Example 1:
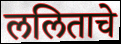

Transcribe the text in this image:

ललिताचे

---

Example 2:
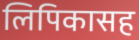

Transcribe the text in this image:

लिपिकासह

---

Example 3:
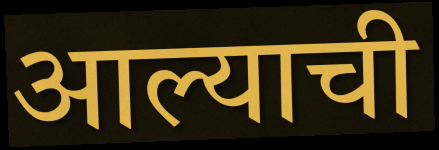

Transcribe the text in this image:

आल्याची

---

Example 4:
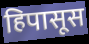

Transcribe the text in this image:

हिपासूस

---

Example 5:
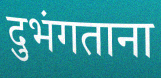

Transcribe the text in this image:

दुभंगताना